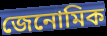
জেনোমিক